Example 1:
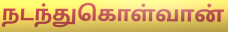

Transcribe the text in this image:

நடந்துகொள்வான்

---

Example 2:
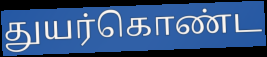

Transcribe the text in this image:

துயர்கொண்ட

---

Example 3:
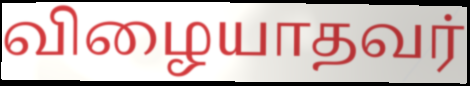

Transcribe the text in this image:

விழையாதவர்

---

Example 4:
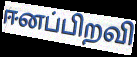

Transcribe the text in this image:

ஈனப்பிறவி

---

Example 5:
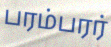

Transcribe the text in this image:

பரம்பரர்